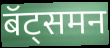
बॅट्समन